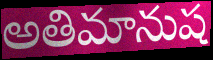
అతిమానుష